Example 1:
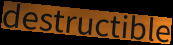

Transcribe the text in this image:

destructible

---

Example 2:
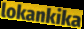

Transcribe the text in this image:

lokankika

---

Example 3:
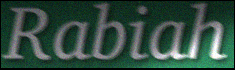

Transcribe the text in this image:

Rabiah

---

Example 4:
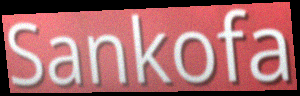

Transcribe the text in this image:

Sankofa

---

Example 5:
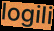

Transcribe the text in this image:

logili